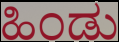
ಹಿಂಡು